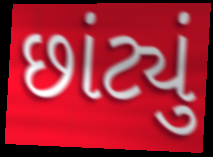
છાંટ્યું